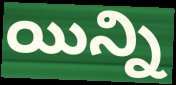
యిన్ని